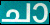
ചാ